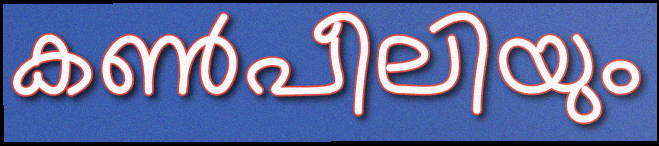
കൺപീലിയും